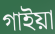
গাইয়া